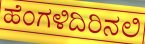
ಹೆಂಗಳಿದಿರಿನಲಿ